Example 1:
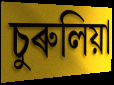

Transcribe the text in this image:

চুৰুলিয়া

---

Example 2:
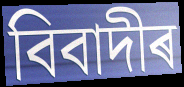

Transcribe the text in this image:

বিবাদীৰ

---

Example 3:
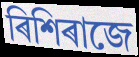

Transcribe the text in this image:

ৰিশিৰাজে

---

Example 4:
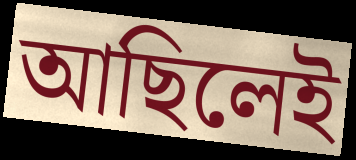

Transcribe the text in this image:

আছিলেই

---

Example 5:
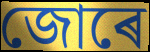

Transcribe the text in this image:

জোৰে